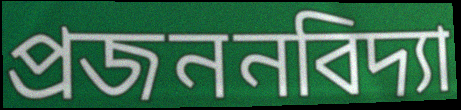
প্রজননবিদ্যা